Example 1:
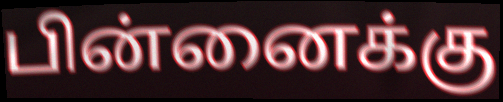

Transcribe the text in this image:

பின்னைக்கு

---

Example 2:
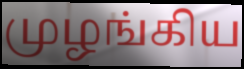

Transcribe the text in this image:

முழங்கிய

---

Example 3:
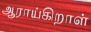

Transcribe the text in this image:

ஆராய்கிறாள்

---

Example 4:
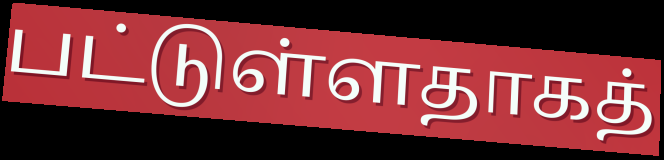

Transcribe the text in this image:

பட்டுள்ளதாகத்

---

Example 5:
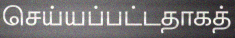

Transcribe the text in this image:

செய்யப்பட்டதாகத்